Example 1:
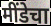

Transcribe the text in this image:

मींडेचा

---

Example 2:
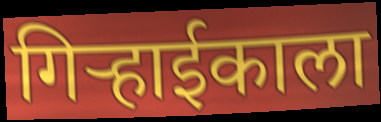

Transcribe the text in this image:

गिर्‍हाईकाला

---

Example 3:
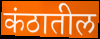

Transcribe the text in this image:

कंठातील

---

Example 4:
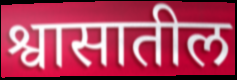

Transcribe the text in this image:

श्वासातील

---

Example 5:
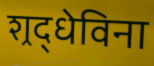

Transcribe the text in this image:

श्रद्धेविना